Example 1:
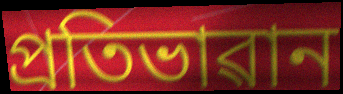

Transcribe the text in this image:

প্ৰতিভাৱান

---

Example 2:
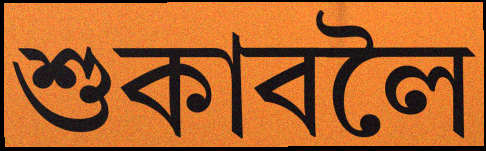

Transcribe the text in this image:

শুকাবলৈ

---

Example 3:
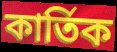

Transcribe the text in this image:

কাৰ্তিক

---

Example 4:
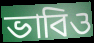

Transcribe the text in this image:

ভাবিও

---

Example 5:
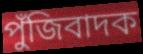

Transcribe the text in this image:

পুঁজিবাদক